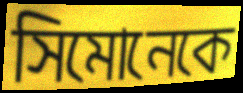
সিমোনেকে